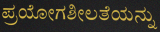
ಪ್ರಯೋಗಶೀಲತೆಯನ್ನು